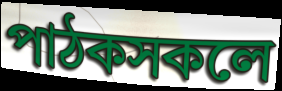
পাঠকসকলে